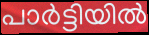
പാർട്ടിയിൽ